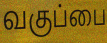
வகுப்பை